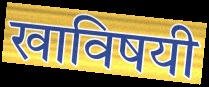
खाविषयी